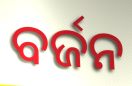
ବର୍ଜନ